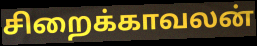
சிறைக்காவலன்